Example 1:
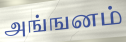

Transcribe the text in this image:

அங்ஙனம்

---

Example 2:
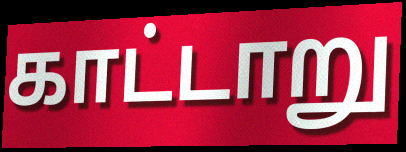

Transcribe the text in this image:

காட்டாறு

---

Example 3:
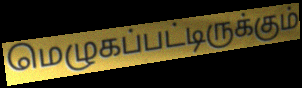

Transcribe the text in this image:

மெழுகப்பட்டிருக்கும்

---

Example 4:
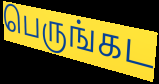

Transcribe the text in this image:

பெருங்கட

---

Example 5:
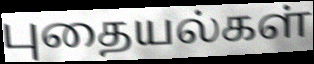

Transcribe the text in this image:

புதையல்கள்